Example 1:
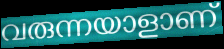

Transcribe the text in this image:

വരുന്നയാളാണ്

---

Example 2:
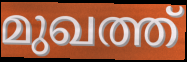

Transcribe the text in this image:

മുഖത്ത്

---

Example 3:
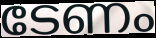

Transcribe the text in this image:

ടേണം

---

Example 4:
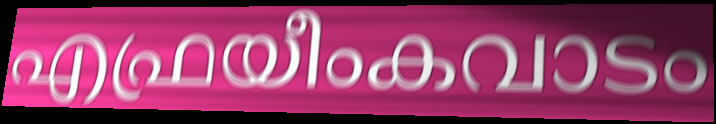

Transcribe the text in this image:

എഫ്രയീംകവാടം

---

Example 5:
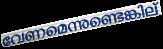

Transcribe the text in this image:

വേണമെന്നുണ്ടെങ്കില്